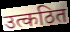
उत्कठित